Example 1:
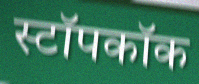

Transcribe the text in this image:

स्टॉपकॉक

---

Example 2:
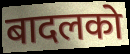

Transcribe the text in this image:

बादलको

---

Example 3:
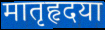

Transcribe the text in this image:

मातृहृदया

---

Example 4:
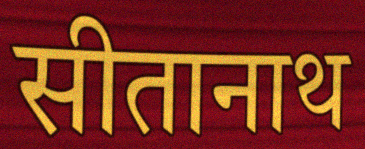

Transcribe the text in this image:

सीतानाथ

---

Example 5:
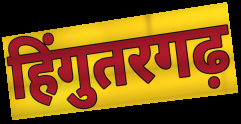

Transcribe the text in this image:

हिंगुतरगढ़